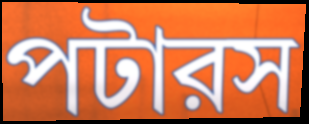
পটারস